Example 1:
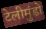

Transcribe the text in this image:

टेलीमुंडो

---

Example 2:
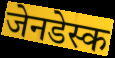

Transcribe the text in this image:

जेनडेस्क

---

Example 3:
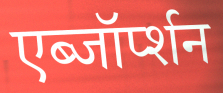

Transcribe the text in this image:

एब्जॉर्प्शन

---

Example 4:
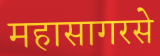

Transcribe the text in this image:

महासागरसे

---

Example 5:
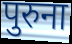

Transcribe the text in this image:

पुरुना